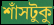
শাঁসটুকু